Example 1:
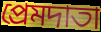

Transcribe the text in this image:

প্রেমদাতা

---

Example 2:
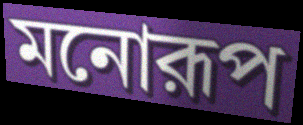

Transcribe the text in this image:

মনোরূপ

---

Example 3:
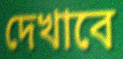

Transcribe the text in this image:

দেখাবে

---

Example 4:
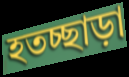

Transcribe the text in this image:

হতচ্ছাড়া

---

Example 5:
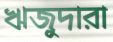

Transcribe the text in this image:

ঋজুদারা